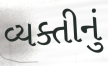
વ્યક્તીનું